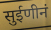
सुईणीनं